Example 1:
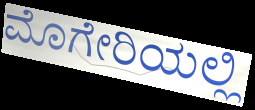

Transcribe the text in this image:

ಮೊಗೇರಿಯಲ್ಲಿ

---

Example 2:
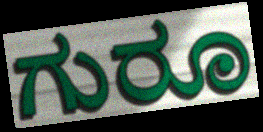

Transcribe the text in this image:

ಗುರೂ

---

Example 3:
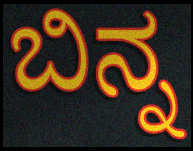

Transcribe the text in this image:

ಬಿನ್ನ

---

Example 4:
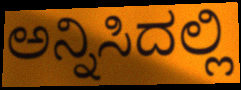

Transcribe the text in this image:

ಅನ್ನಿಸಿದಲ್ಲಿ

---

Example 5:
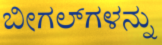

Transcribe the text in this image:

ಬೀಗಲ್‌ಗಳನ್ನು